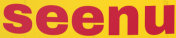
seenu